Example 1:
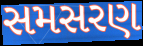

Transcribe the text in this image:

સમસરણ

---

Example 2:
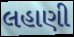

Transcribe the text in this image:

લહાણી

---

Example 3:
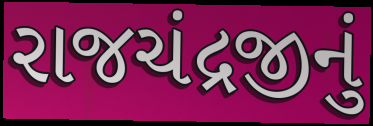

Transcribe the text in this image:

રાજચંદ્રજીનું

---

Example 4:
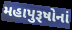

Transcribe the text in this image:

મહાપુરૂષોનાં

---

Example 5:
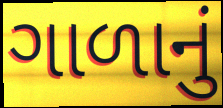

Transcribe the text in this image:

ગાળાનું